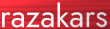
razakars